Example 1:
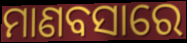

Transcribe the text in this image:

ମାଣବସାରେ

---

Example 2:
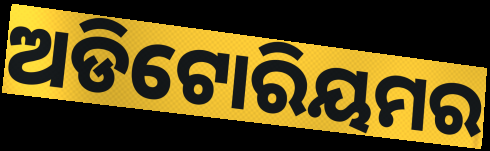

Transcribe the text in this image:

ଅଡିଟୋରିୟମର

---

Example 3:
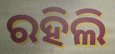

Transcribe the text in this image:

ରହିଲି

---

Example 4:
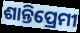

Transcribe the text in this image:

ଶାନ୍ତିପ୍ରେମୀ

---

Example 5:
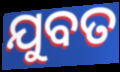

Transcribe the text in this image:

ଯୁବତ